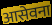
आसेवना